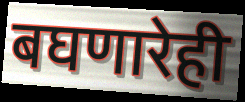
बघणारेही